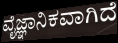
ವೈಜ್ಞಾನಿಕವಾಗಿದೆ